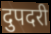
दुपदरी